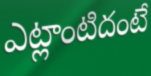
ఎట్లాంటిదంటే